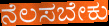
ನೆಲಸಬೇಕು